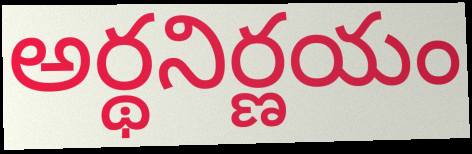
అర్థనిర్ణయం